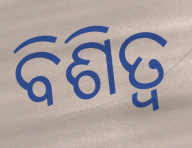
ବିଶିତ୍ଵ